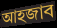
আহজাব